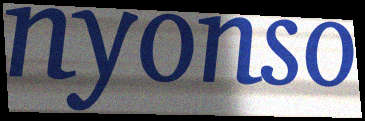
nyonso